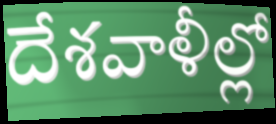
దేశవాళీల్లో